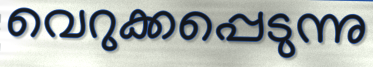
വെറുക്കപ്പെടുന്നു